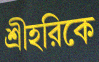
শ্রীহরিকে